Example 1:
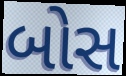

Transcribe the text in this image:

બોસ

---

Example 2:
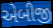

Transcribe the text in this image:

એબીજી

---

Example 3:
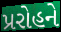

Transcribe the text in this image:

પ્રરોહને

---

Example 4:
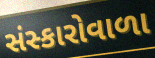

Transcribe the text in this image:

સંસ્કારોવાળા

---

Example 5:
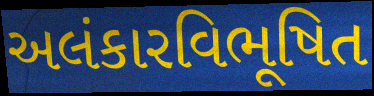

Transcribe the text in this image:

અલંકારવિભૂષિત